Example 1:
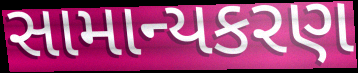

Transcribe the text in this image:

સામાન્યકરણ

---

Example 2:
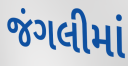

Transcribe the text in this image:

જંગલીમાં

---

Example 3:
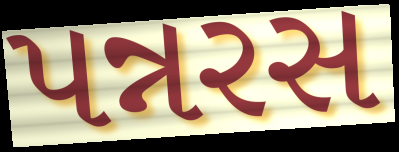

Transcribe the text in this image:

પન્નરસ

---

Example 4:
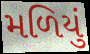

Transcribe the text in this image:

મળિયું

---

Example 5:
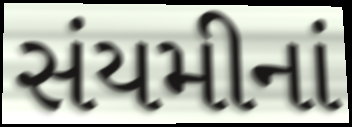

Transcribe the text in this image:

સંયમીનાં